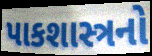
પાકશાસ્ત્રનો